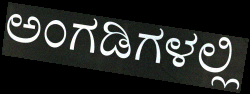
ಅಂಗಡಿಗಳಲ್ಲಿ